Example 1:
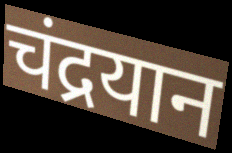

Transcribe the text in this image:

चंद्रयान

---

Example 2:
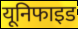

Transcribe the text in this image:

यूनिफाइड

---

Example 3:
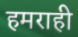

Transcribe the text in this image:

हमराही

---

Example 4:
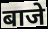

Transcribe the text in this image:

बाजे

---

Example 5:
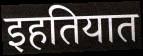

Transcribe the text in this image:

इहतियात